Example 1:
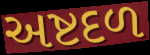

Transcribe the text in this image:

અષ્ટદળ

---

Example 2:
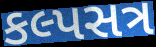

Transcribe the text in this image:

કલ્પસત્ર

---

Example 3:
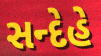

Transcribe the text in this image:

સન્દેહે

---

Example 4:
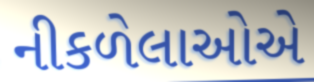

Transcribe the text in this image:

નીકળેલાઓએ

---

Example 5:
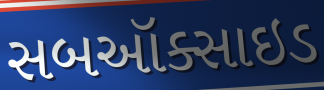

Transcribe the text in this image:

સબઑક્સાઇડ